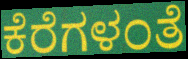
ಕೆರೆಗಳಂತೆ